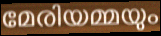
മേരിയമ്മയും